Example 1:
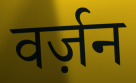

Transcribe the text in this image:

वर्ज़न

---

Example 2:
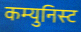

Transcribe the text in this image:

कम्युनिस्ट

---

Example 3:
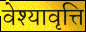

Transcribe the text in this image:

वेश्यावृत्ति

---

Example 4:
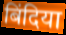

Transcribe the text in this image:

बिंदिया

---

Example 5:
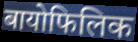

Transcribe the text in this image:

बायोफिलिक